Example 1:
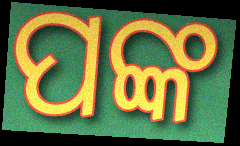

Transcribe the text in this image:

ପଙ୍କ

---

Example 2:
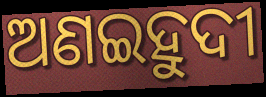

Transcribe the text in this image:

ଅଣଇହୁଦୀ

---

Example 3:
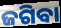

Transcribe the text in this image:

ଜଗିବା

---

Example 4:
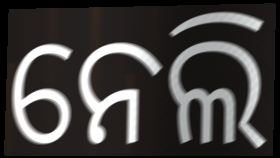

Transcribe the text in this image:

ନେଲି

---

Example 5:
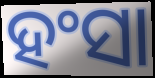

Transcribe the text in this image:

ହଂସା